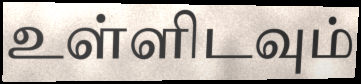
உள்ளிடவும்